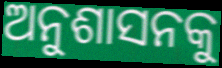
ଅନୁଶାସନକୁ